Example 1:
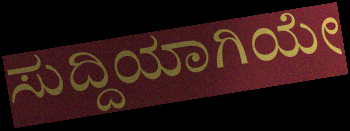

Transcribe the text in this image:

ಸುದ್ದಿಯಾಗಿಯೇ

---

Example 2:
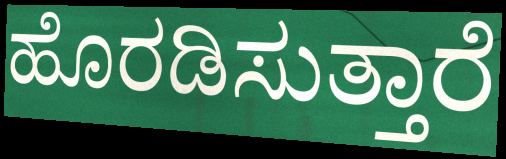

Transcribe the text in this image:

ಹೊರಡಿಸುತ್ತಾರೆ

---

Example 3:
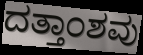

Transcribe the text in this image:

ದತ್ತಾಂಶವು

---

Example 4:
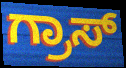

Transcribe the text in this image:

ಗ್ರಾಸ್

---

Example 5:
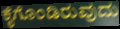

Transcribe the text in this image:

ಕೈಗೊಂಡಿರುವುದು